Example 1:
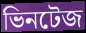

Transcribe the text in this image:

ভিনটেজ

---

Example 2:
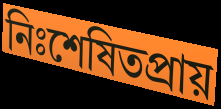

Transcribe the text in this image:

নিঃশেষিতপ্রায়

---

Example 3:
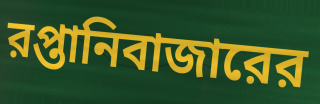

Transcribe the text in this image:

রপ্তানিবাজারের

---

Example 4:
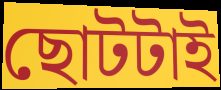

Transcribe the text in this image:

ছোটটাই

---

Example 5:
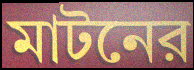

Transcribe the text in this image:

মাটনের